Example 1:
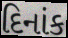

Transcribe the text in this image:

દિનાંક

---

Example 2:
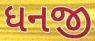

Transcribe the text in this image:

ધનજી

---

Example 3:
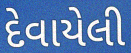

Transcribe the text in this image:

દેવાયેલી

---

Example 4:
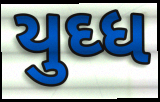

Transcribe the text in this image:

યુઘ્ધ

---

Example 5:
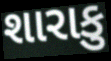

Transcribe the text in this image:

શારાકુ